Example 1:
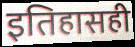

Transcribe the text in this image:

इतिहासही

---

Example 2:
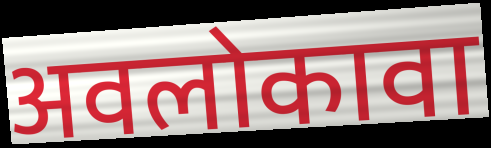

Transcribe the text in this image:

अवलोकावा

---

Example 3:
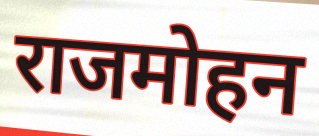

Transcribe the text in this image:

राजमोहन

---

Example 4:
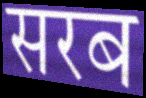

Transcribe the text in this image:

सरब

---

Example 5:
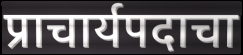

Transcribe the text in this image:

प्राचार्यपदाचा